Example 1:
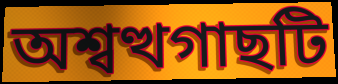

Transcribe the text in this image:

অশ্বত্থগাছটি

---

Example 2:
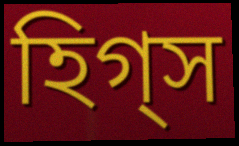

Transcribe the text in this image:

হিগ্স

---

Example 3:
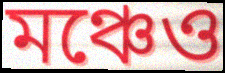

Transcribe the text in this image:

মঞ্চেও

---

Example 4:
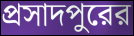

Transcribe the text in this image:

প্রসাদপুরের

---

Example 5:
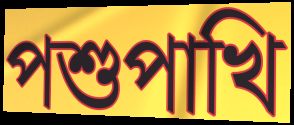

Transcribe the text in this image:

পশুপাখি